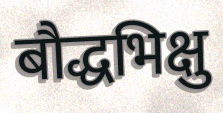
बौद्धभिक्षु